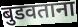
बुडवताना